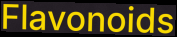
Flavonoids